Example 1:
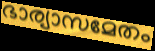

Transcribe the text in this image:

ഭാര്യാസമേതം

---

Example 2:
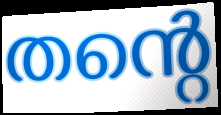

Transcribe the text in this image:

തന്റെ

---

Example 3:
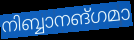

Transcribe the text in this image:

നിബ്ബാനങ്ഗമാ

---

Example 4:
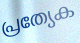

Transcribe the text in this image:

പ്രത്യേക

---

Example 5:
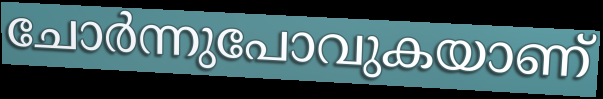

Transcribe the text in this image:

ചോർന്നുപോവുകയാണ്